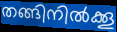
തങ്ങിനിൽക്കൂ